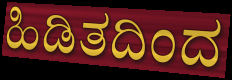
ಹಿಡಿತದಿಂದ